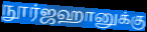
நூர்ஜஹானுக்கு